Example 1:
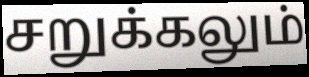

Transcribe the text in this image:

சறுக்கலும்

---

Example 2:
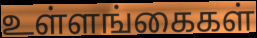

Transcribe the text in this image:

உள்ளங்கைகள்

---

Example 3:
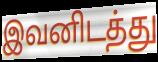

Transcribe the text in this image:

இவனிடத்து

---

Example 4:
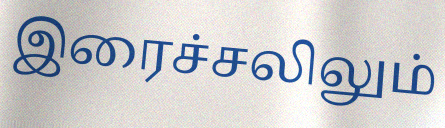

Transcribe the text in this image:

இரைச்சலிலும்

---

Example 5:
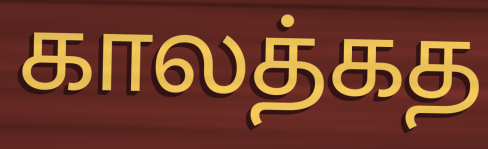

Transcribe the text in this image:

காலத்கத